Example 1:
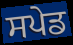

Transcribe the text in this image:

ਸਪੇਡ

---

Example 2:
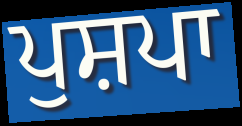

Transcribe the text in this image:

ਪੁਸ਼ਪਾ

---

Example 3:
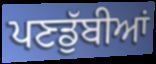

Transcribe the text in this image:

ਪਣਡੁੱਬੀਆਂ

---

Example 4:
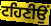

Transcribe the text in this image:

ਟਹਿਣੀਉਂ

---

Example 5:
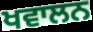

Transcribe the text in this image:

ਖਵਾਲਨ